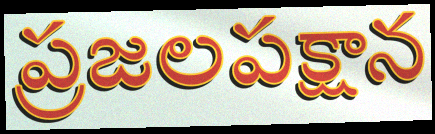
ప్రజలపక్షాన